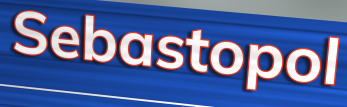
Sebastopol